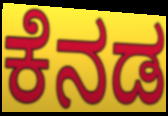
ಕೆನಡ